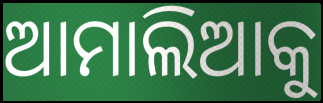
ଆମାଲିଆକୁ